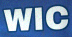
WIC